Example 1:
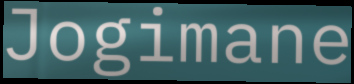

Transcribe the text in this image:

Jogimane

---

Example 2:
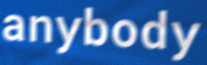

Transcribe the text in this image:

anybody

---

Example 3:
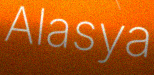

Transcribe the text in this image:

Alasya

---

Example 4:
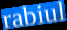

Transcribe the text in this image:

rabiul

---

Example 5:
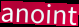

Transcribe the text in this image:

anoint